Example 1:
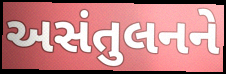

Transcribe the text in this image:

અસંતુલનને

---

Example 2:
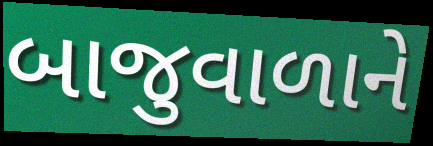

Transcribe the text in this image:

બાજુવાળાને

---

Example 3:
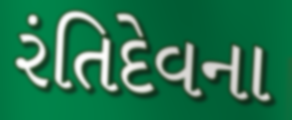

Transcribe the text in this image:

રંતિદેવના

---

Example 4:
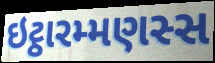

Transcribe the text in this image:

ઇટ્ઠારમ્મણસ્સ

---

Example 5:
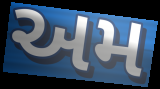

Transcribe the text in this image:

અમ